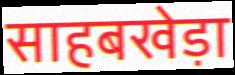
साहबखेड़ा